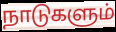
நாடுகளும்